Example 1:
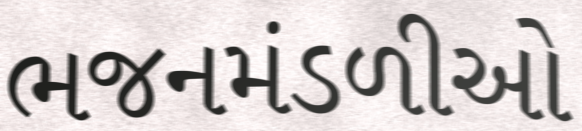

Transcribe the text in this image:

ભજનમંડળીઓ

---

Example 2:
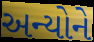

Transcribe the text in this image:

અન્યોને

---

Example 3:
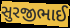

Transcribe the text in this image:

સુરજીભાઈ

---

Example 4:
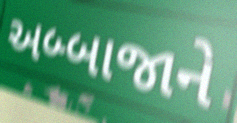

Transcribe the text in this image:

અબ્બાજાને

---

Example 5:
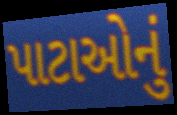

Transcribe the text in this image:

પાટાઓનું